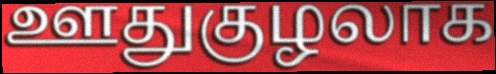
ஊதுகுழலாக